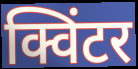
क्विंटर